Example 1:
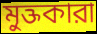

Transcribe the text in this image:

মুক্তকারা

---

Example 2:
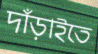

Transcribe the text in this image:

দাঁড়াইতে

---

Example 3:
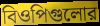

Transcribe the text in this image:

বিওপিগুলোর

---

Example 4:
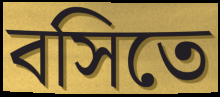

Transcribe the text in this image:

বসিতে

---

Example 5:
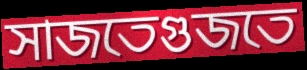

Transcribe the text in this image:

সাজতেগুজতে